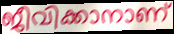
ജീവിക്കാനാണ്